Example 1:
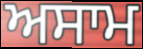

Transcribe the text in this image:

ਅਸਾਮ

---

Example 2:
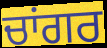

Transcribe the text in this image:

ਚਾਂਗਰ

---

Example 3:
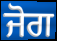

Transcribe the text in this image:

ਜੋਗ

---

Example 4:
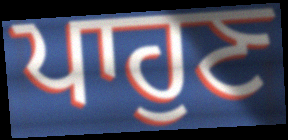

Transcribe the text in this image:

ਪਾਹੁਣ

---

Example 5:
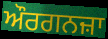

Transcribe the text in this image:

ਔਰਗਨਜ਼ਾ